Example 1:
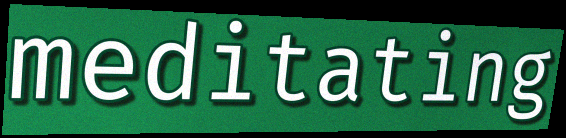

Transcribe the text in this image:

meditating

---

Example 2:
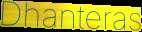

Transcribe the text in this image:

Dhanteras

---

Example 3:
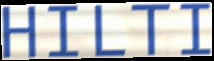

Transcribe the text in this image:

HILTI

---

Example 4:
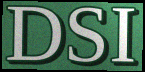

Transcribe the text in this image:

DSI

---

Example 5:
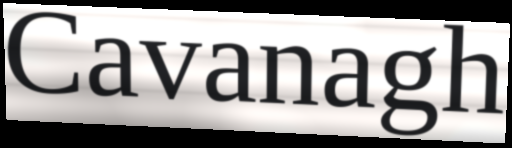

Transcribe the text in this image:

Cavanagh